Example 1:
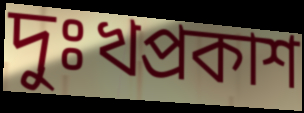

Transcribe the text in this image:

দুঃখপ্রকাশ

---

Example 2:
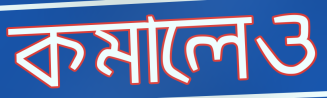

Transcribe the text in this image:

কমালেও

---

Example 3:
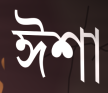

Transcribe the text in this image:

ঈশা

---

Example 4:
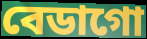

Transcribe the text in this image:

বেডাগো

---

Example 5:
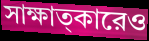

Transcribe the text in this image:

সাক্ষাত্কারেও